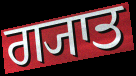
ਗ੍ਯਾਤ